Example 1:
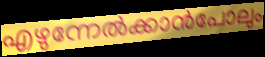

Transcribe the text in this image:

എഴുന്നേൽക്കാൻപോലും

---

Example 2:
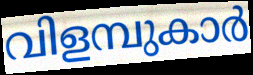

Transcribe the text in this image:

വിളമ്പുകാർ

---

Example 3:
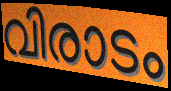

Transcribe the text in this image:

വിരാടം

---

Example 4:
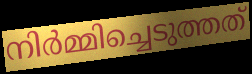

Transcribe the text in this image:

നിർമ്മിച്ചെടുത്തത്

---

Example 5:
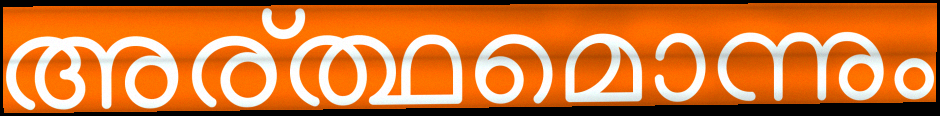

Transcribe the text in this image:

അര്ത്ഥമൊന്നും